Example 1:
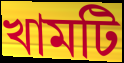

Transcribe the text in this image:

খামটি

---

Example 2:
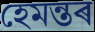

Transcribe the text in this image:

হেমন্তৰ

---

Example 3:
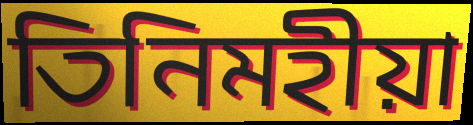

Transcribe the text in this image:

তিনিমহীয়া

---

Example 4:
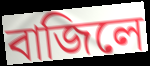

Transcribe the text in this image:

বাজিলে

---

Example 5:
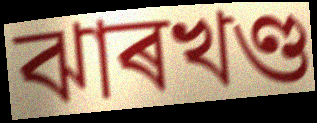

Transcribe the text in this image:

ঝাৰখণ্ড